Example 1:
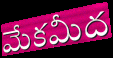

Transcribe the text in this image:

మేకమీద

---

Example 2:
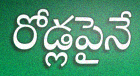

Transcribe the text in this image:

రోడ్లపైనే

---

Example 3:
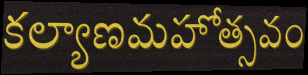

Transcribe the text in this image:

కల్యాణమహోత్సవం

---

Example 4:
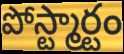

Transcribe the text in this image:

పోస్ట్మార్టం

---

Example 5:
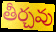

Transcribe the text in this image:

తీర్చవు